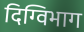
दिग्विभाग